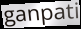
ganpati